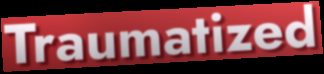
Traumatized